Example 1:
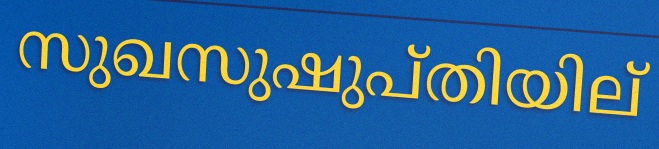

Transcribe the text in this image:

സുഖസുഷുപ്തിയില്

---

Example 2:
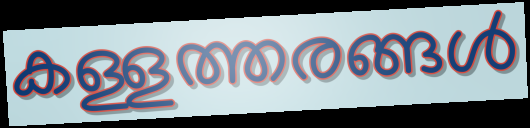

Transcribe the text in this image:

കള്ളത്തരങ്ങൾ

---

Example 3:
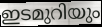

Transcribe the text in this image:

ഇടമുറിയും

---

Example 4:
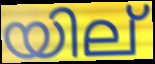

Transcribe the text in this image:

യില്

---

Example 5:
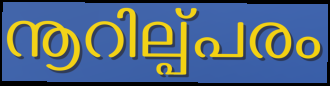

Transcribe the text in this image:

നൂറില്പ്പരം